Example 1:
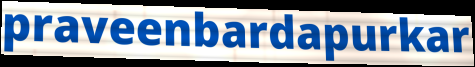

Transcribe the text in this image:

praveenbardapurkar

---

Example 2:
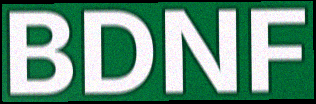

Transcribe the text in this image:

BDNF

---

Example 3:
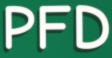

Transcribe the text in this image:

PFD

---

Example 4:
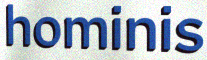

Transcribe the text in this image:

hominis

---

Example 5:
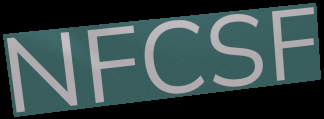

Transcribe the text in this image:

NFCSF